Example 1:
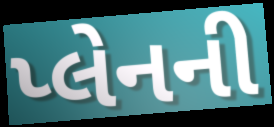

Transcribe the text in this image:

પ્લેનની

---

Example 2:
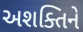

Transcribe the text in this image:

અશક્તિને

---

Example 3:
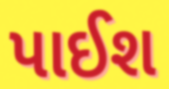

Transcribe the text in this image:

પાઈશ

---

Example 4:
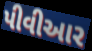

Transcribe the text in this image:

પીવીઆર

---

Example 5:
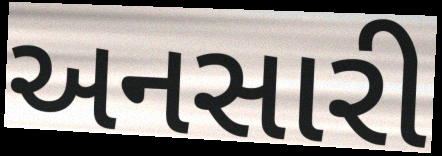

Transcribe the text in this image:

અનસારી